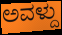
ಅವಳ್ದು